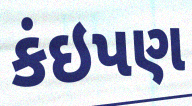
કંઇપણ